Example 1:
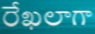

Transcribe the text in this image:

రేఖలాగా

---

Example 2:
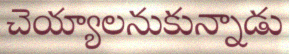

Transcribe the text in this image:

చెయ్యాలనుకున్నాడు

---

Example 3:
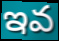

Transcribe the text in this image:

ఇవ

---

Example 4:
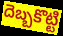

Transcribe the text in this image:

దెబ్బకొట్టి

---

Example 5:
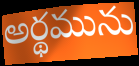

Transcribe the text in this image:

అర్థమును